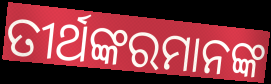
ତୀର୍ଥଙ୍କରମାନଙ୍କ